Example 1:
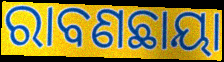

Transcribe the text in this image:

ରାବଣଛାୟା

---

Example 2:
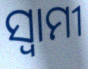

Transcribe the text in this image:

ସ୍ବାମୀ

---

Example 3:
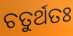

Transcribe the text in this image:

ଚତୁର୍ଥତଃ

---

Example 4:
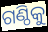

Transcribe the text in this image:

ଗଣ୍ଠିକୁ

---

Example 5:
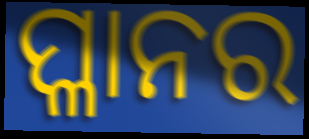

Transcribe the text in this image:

ପ୍ଳାନର